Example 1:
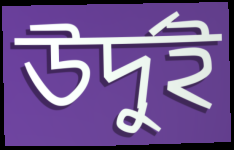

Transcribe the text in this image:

উর্দুই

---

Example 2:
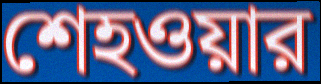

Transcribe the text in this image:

শেহওয়ার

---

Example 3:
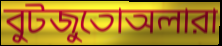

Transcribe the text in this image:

বুটজুতোঅলারা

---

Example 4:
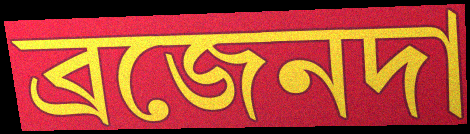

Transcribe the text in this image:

ব্রজেনদা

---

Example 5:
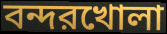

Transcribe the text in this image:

বন্দরখোলা